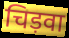
चिड़वा